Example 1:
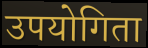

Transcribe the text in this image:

उपयोगिता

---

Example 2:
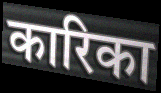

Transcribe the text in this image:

कारिका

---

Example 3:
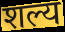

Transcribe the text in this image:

शल्‍य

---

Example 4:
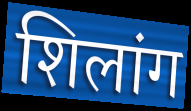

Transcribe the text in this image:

शिलांग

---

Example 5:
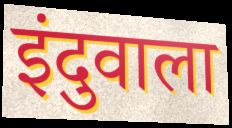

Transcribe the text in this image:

इंदुवाला